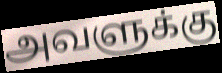
அவளுக்கு